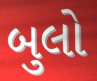
બુલો